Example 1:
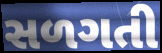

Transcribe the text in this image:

સળગતી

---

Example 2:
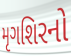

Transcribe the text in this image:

મૃગશિરનો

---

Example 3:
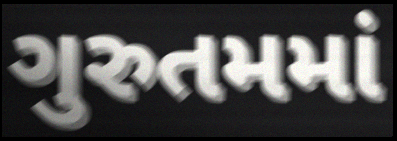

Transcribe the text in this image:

ગુરુતમમાં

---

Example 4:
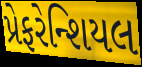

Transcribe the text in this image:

પ્રેફરેન્શિયલ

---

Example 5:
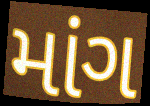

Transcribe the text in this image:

માંગ